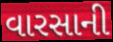
વારસાની